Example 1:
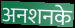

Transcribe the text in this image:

अनशनके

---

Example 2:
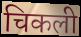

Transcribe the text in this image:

चिकली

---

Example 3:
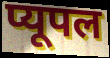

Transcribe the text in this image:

प्यूपल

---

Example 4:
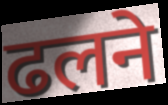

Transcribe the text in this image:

ढलने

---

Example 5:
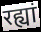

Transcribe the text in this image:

रह्यां